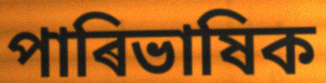
পাৰিভাষিক